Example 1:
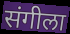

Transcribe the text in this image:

संगीला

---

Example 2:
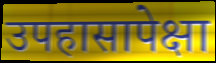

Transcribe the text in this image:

उपहासापेक्षा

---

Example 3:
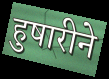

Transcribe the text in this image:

हुषारीने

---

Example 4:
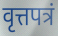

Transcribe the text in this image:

वृत्तपत्रं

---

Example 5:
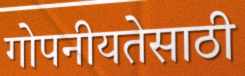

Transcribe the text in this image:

गोपनीयतेसाठी